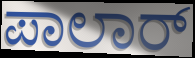
ಪಾಲಾರ್